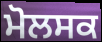
ਮੋਲਸਕ